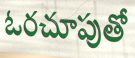
ఓరచూపుతో